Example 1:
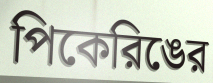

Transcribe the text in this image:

পিকেরিঙের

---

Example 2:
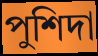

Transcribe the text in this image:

পুশিদা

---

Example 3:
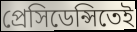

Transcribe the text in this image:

প্রেসিডেন্সিতেই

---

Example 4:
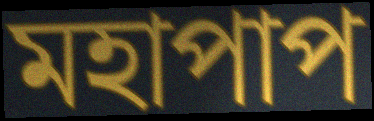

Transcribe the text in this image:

মহাপাপ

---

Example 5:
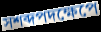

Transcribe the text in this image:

সশব্দপদক্ষেপে